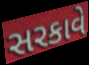
સરકાવે